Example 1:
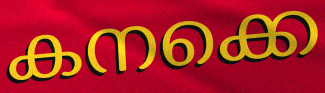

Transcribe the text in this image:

കനക്കെ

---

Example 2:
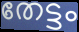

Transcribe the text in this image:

തേട്ടം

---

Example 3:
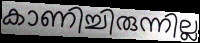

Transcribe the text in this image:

കാണിച്ചിരുന്നില്ല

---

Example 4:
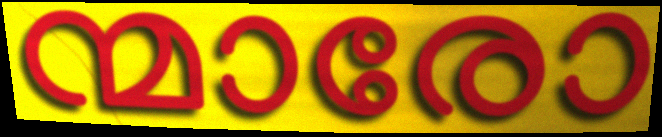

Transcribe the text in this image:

ന്മാരോ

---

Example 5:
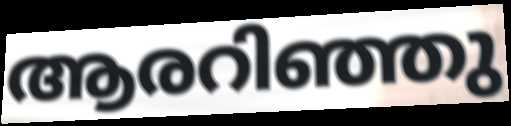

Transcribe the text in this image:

ആരറിഞ്ഞു